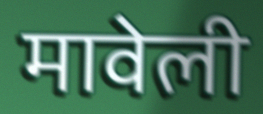
मावेली